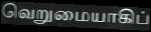
வெறுமையாகிப்